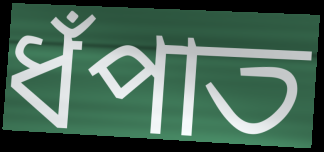
ধঁপাত